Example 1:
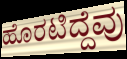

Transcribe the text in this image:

ಹೊರಟಿದ್ದೆವು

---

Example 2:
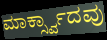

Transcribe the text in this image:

ಮಾರ್ಕ್ಸ್ವಾದವು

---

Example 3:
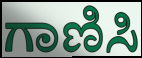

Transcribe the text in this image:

ಗಾಣಿಸಿ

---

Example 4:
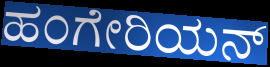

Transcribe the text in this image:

ಹಂಗೇರಿಯನ್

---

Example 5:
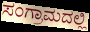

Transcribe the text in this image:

ಸಂಗ್ರಾಮದಲ್ಲಿ